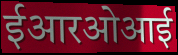
ईआरओआई